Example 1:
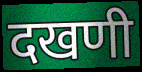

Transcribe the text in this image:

दखणी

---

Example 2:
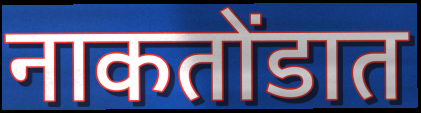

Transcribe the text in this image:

नाकतोंडात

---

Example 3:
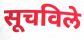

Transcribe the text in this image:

सूचविले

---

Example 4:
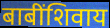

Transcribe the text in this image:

बाबींशिवाय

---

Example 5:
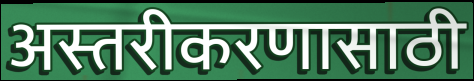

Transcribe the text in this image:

अस्तरीकरणासाठी